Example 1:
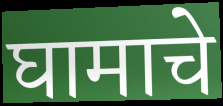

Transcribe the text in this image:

घामाचे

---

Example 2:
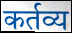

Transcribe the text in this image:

कर्तव्य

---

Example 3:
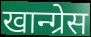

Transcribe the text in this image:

खान्ग्रेस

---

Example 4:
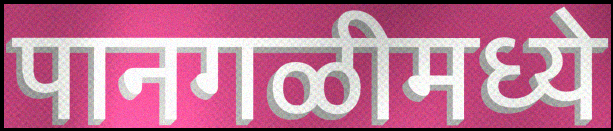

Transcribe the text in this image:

पानगळीमध्ये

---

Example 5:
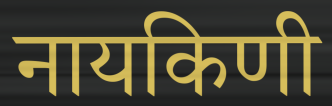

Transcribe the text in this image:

नायकिणी